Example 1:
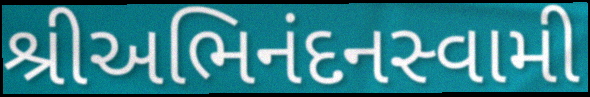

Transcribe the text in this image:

શ્રીઅભિનંદનસ્વામી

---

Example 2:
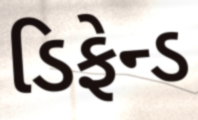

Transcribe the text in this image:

ડિફેન્ડ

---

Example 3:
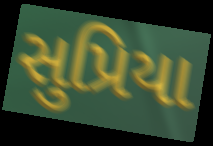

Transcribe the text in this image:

સુપ્રિયા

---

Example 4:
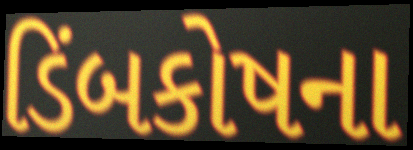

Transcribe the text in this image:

ડિંબકોષના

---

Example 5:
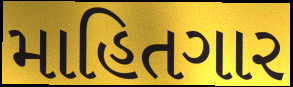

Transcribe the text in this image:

માહિતગાર